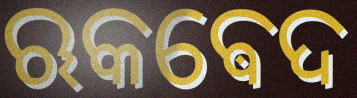
ଋକଵେଦ